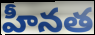
హీనత